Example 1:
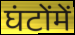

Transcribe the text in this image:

घंटोंमें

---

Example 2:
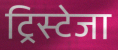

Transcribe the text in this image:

ट्रिस्टेजा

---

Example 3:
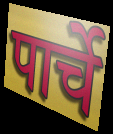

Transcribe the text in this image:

पार्चे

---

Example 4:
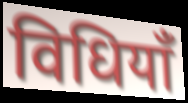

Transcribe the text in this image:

विधियाँ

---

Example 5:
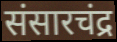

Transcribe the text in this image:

संसारचंद्र